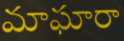
మాఘారా